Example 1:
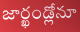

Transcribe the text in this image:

జార్ఖండ్లోనూ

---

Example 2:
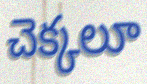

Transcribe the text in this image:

చెక్కలూ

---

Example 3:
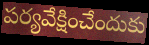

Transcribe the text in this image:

పర్యవేక్షించేందుకు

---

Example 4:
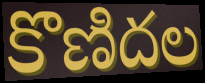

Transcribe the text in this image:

కొణిదల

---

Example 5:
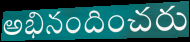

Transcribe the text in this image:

అభినందించరు